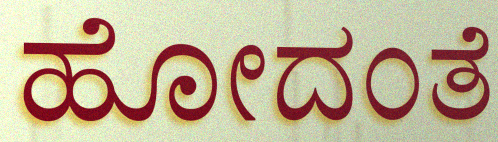
ಹೋದಂತೆ